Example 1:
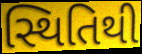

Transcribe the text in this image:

સ્થિતિથી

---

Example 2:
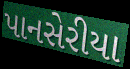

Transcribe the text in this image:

પાનસેરીયા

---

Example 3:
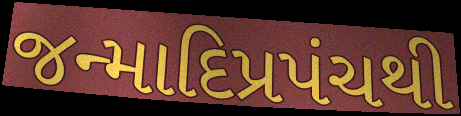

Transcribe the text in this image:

જન્માદિપ્રપંચથી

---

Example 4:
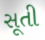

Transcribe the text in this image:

સૂતી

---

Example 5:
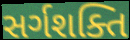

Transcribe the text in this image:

સર્ગશક્તિ